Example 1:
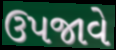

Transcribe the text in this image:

ઉપજાવે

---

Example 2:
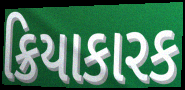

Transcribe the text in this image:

ક્રિયાકારક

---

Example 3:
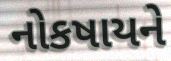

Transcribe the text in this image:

નોકષાયને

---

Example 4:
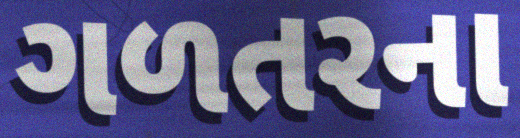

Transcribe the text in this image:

ગળતરના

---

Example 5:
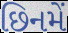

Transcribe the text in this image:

છિનમેં